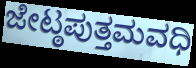
ಜೇಟ್ಠಪುತ್ತಮವಧಿ